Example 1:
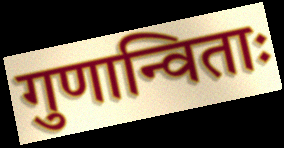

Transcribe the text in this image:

गुणान्विताः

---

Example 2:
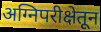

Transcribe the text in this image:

अग्निपरीक्षेतून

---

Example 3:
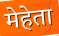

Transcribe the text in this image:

मेहेता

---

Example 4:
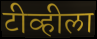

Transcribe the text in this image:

टीव्हीला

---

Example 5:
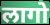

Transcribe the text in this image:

लागो